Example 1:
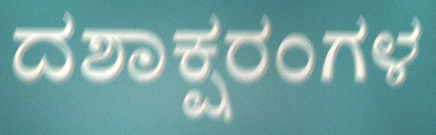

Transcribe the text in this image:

ದಶಾಕ್ಷರಂಗಳ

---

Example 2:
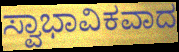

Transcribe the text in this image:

ಸ್ವಾಭಾವಿಕವಾದ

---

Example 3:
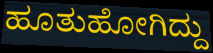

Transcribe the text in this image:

ಹೂತುಹೋಗಿದ್ದು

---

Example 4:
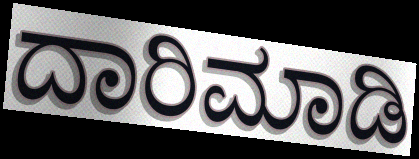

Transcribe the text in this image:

ದಾರಿಮಾಡಿ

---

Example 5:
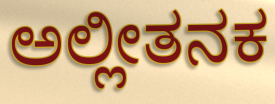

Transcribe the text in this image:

ಅಲ್ಲೀತನಕ